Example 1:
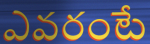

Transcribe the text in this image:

ఎవరంటే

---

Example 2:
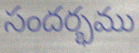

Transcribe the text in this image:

సందర్భము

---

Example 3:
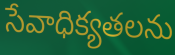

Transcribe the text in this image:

సేవాధిక్యతలను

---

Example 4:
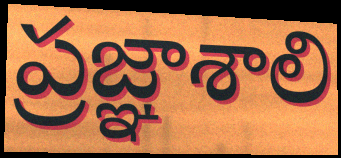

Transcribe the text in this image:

ప్రజ్ఞాశాలి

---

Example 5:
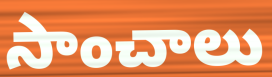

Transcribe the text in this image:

సాంచాలు